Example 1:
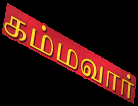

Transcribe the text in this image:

கம்மவார்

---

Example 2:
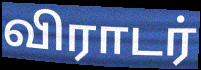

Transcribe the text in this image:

விராடர்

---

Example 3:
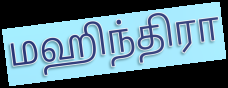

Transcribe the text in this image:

மஹிந்திரா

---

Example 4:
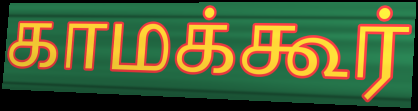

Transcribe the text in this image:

காமக்கூர்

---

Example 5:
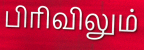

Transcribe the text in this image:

பிரிவிலும்